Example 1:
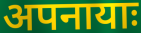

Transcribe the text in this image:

अपनायाः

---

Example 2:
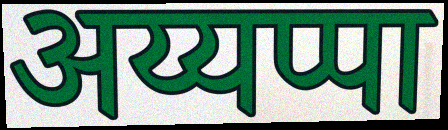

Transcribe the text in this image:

अय्यप्पा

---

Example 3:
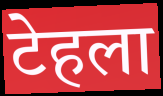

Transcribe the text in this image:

टेहला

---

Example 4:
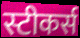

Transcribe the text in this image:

स्टीकर्स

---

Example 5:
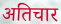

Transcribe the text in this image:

अतिचार